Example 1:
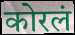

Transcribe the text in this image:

कोरलं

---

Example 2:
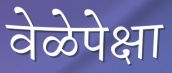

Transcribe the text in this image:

वेळेपेक्षा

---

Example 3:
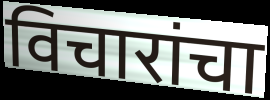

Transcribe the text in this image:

विचारांचा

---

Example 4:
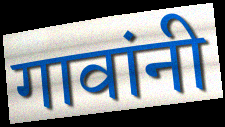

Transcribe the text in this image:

गावांनी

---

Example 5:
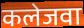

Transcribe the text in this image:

कलेजवा